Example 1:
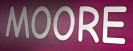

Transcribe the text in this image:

MOORE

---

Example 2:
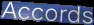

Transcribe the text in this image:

Accords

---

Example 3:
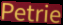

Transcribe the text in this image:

Petrie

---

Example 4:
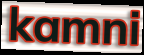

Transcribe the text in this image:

kamni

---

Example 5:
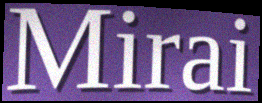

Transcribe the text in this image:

Mirai